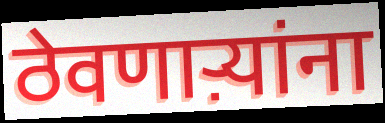
ठेवणाऱ्‍यांना